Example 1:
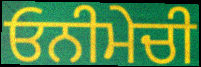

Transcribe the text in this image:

ਓਨੀਮੇਚੀ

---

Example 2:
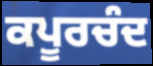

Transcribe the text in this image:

ਕਪੂਰਚੰਦ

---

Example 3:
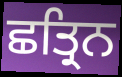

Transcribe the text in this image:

ਛਤ੍ਰਿਨ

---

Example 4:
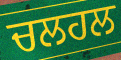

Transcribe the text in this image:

ਚਲਹਲ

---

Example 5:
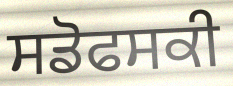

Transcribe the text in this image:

ਸਡੋਫਸਕੀ